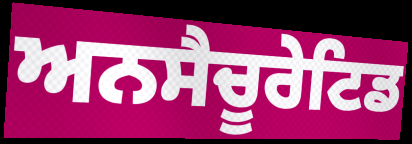
ਅਨਸੈਚੂਰੇਟਿਡ